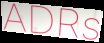
ADRs